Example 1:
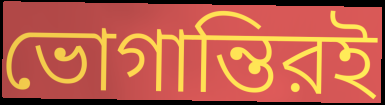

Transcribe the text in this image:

ভোগান্তিরই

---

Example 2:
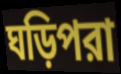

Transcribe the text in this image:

ঘড়িপরা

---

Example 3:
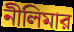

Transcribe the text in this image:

নীলিমার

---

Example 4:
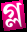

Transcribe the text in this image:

গ্ল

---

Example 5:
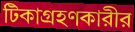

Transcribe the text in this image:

টিকাগ্রহণকারীর